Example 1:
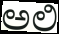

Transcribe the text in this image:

ಅಲಿ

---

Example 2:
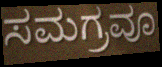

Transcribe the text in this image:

ಸಮಗ್ರವೂ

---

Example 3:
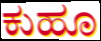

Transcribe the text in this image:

ಕುಹೂ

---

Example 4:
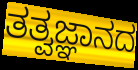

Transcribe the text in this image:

ತತ್ವಜ್ಞಾನದ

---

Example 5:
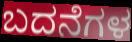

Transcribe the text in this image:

ಬದನೆಗಳ